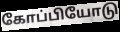
கோப்பியோடு